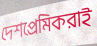
দেশপ্রেমিকরাই